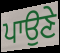
ਪਾਉਣੇ